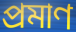
প্ৰমাণ